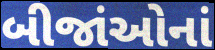
બીજાંઓનાં